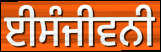
ਈਸੰਜੀਵਨੀ